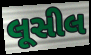
લૂસીલ